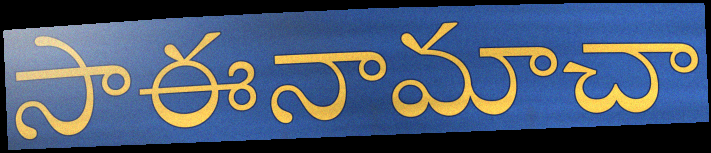
సాఈనామాచా